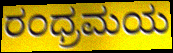
ರಂಧ್ರಮಯ